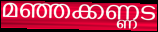
മഞ്ഞക്കണ്ണട